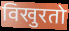
विखुरतो